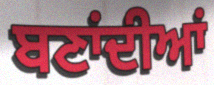
ਬਣਾਂਦੀਆਂ